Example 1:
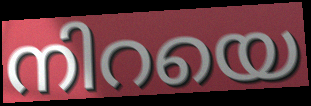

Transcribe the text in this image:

നിറയെ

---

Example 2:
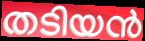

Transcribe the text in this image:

തടിയൻ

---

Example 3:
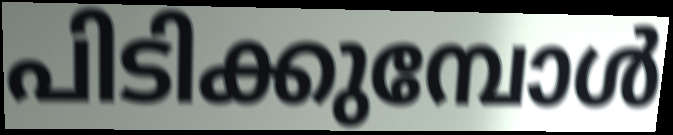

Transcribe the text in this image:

പിടിക്കുമ്പോൾ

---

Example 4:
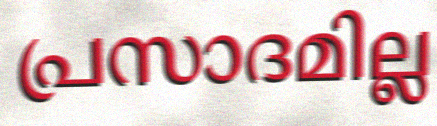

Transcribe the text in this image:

പ്രസാദമില്ല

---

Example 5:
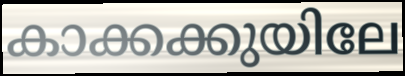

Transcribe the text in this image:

കാക്കക്കുയിലേ